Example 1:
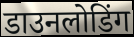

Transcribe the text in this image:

डाउनलोडिंग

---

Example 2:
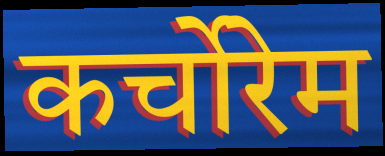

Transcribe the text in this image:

कर्चोरेम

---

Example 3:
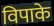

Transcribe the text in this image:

विपाके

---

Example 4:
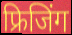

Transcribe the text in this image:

फ्रिजिंग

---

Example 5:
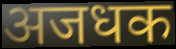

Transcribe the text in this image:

अजधक